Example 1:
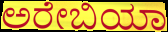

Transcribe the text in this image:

ಅರೇಬಿಯಾ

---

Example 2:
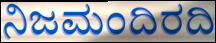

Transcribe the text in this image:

ನಿಜಮಂದಿರದಿ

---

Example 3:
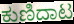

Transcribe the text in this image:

ಕುಣಿದಾಟ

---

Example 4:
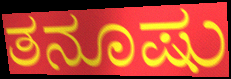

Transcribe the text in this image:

ತನೂಷು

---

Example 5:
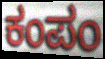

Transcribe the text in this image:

ಕಂಪಂ